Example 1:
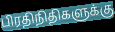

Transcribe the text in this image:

பிரதிநிதிகளுக்கு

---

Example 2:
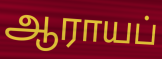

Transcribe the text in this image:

ஆராயப்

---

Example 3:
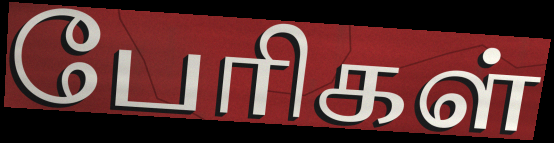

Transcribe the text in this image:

பேரிகள்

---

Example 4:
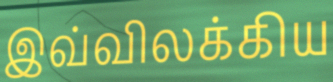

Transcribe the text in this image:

இவ்விலக்கிய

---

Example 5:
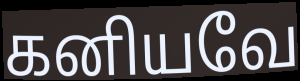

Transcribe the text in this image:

கனியவே